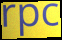
rpc